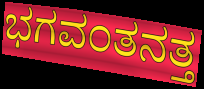
ಭಗವಂತನತ್ತ